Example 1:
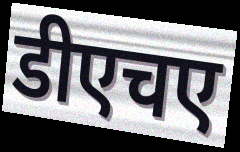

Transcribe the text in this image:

डीएचए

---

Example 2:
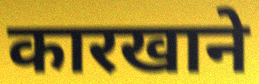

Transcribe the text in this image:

कारखाने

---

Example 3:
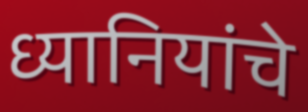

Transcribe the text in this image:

ध्यानियांचे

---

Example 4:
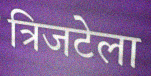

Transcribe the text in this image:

त्रिजटेला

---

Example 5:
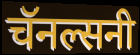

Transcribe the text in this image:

चॅनल्सनी